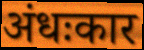
अंधःकार